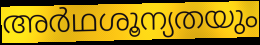
അർഥശൂന്യതയും